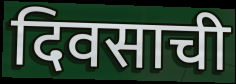
दिवसाची